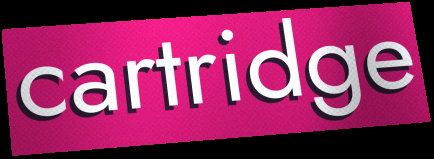
cartridge